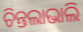
ଚିନ୍ତଲାଭାଲି